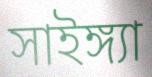
সাইঙ্গ্যা